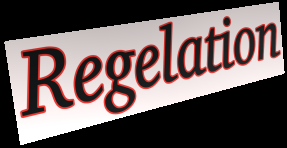
Regelation